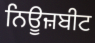
ਨਿਊਜ਼ਬੀਟ